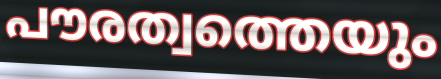
പൗരത്വത്തെയും